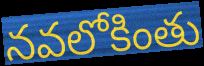
నవలోకింతు